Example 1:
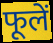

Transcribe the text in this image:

फूलें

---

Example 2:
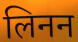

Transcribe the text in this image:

लिनन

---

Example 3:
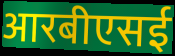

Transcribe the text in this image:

आरबीएसई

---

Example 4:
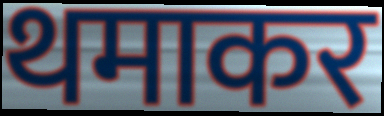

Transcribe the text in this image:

थमाकर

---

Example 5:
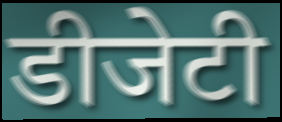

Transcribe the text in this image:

डीजेटी